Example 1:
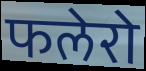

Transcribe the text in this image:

फलेरो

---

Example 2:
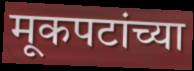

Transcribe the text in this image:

मूकपटांच्या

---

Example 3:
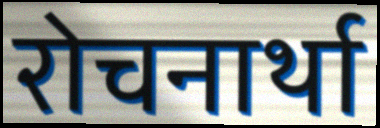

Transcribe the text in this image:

रोचनार्था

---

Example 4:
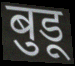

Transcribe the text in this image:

बुडू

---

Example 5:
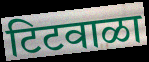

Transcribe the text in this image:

टिटवाळा